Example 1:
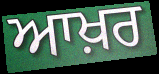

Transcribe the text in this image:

ਆਖ਼ਰ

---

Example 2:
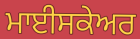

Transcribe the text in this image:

ਮਾਈਸਕੇਅਰ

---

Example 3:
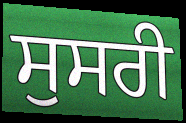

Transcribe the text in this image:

ਸੁਸਰੀ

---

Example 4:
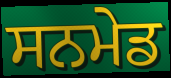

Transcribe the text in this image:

ਸਨਮੇਡ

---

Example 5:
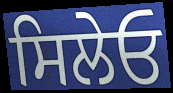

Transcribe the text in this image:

ਸਿਲੇਓ